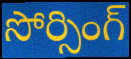
సోర్సింగ్